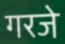
गरजे